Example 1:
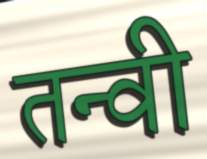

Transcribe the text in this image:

तन्वी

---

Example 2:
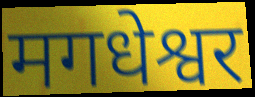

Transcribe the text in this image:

मगधेश्वर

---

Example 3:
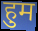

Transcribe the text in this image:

हुम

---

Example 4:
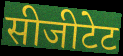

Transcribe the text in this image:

सीजीटेट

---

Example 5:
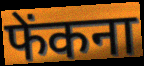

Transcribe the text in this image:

फेंकना